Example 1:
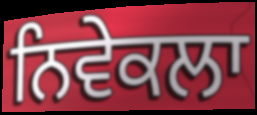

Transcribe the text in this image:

ਨਿਵੇਕਲਾ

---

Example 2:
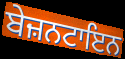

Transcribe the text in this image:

ਬੇਜ਼ਨਟਾਇਨ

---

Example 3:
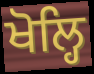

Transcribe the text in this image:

ਖੋਲ੍ਹਿ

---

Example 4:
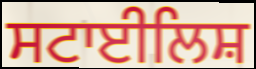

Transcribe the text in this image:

ਸਟਾਈਲਿਸ਼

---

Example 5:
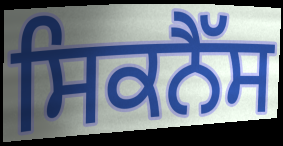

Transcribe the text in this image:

ਸਿਕਨੈੱਸ